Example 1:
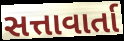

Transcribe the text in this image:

સત્તાવાર્તા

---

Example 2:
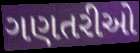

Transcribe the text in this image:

ગણતરીઓ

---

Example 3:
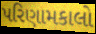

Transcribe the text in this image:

પરિણામકાલો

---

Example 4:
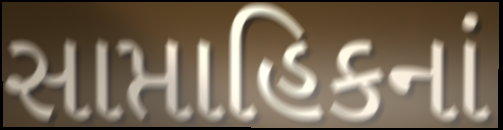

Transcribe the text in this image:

સાપ્તાહિકનાં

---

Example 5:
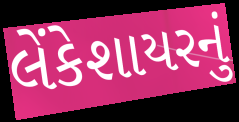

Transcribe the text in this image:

લેંકેશાયરનું